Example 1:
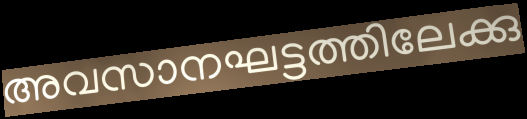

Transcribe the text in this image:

അവസാനഘട്ടത്തിലേക്കു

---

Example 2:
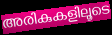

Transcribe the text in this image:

അരികുകളിലൂടെ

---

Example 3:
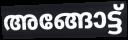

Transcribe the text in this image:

അങ്ങോട്ട്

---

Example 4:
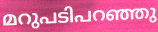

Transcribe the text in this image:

മറുപടിപറഞ്ഞു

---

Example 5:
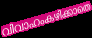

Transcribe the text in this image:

വിവാഹംകഴിക്കാതെ